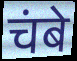
चंबे